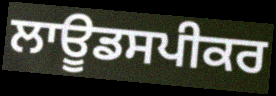
ਲਾਊਡਸਪੀਕਰ